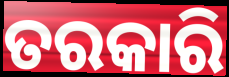
ତରକାରି